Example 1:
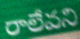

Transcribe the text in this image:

రాలేవని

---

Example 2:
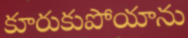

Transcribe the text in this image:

కూరుకుపోయాను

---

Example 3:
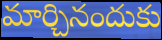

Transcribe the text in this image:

మార్చినందుకు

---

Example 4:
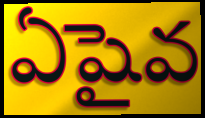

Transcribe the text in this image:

ఏషైవ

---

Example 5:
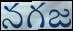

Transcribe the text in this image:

నగజ